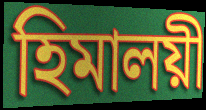
হিমালয়ী